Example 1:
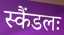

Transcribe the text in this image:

स्कैंडलः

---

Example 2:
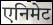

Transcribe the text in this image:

एनिमेट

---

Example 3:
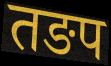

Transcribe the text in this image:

तङप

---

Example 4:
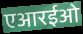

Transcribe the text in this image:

एआरईओ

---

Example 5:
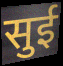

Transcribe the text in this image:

सुई